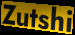
Zutshi